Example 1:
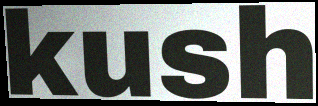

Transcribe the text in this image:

kush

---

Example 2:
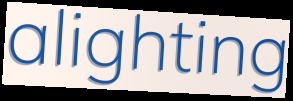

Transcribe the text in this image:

alighting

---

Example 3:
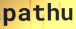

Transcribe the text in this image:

pathu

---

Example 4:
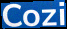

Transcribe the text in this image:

Cozi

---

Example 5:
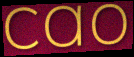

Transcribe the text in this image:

cao